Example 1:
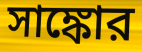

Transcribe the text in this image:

সাঙ্কোর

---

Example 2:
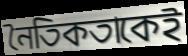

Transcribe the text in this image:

নৈতিকতাকেই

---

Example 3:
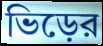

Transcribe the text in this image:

ভিড়ের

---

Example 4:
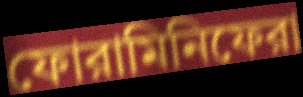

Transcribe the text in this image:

ফোরামিনিফেরা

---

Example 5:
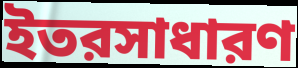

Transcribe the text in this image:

ইতরসাধারণ